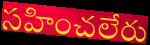
సహించలేరు